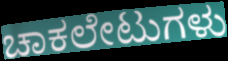
ಚಾಕಲೇಟುಗಳು